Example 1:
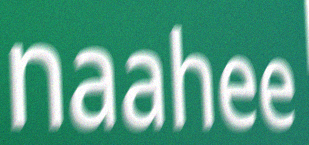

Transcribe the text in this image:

naahee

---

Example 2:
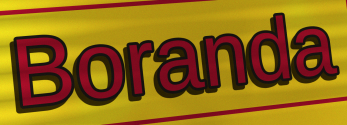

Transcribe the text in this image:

Boranda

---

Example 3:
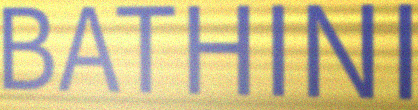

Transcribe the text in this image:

BATHINI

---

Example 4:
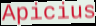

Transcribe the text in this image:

Apicius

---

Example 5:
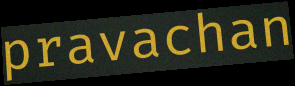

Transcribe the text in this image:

pravachan